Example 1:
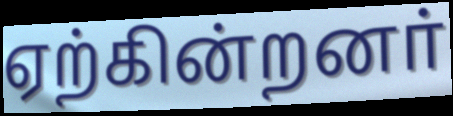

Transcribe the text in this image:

ஏற்கின்றனர்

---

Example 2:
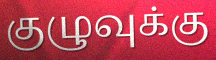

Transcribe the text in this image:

குழுவுக்கு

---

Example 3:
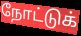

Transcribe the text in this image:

நோட்டுக்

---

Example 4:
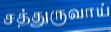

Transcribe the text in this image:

சத்துருவாய்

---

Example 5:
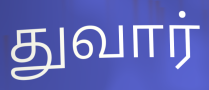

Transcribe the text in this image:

துவார்